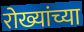
रोख्यांच्या